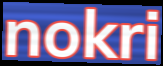
nokri